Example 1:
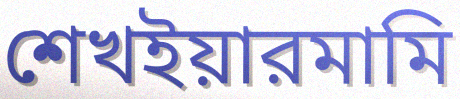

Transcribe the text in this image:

শেখইয়ারমামি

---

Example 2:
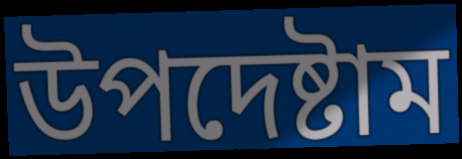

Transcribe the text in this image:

উপদেষ্টাম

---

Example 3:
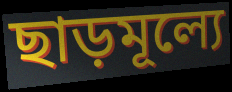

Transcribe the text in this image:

ছাড়মূল্যে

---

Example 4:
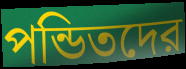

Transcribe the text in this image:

পন্ডিতদের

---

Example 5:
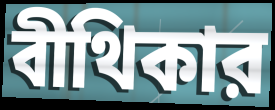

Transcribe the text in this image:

বীথিকার